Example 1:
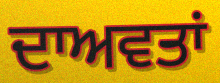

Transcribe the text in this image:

ਦਾਅਵਤਾਂ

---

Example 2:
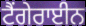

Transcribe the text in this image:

ਟੈਂਗੇਰਾਈਨ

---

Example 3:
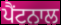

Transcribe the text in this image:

ਪੈਂਟਨਾਲ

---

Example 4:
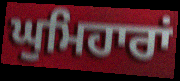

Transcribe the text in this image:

ਘੁਮਿਹਾਰਾਂ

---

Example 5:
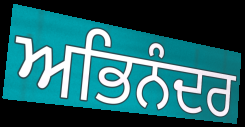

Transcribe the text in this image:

ਅਭਿਨੰਦਰ